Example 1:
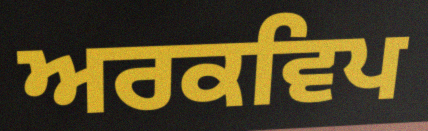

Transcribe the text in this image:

ਅਰਕਵਿਪ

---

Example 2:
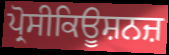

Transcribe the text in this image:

ਪ੍ਰੋਸੀਕਿਊਸ਼ਨਜ਼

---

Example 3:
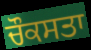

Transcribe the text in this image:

ਚੌਕਸਤਾ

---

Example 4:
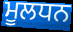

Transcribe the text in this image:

ਮੂਲਧਨ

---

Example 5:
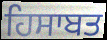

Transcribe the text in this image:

ਹਿਸਾਬਤ